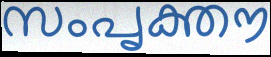
സംപൃക്തൗ